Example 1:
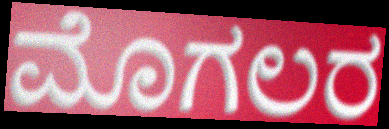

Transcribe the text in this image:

ಮೊಗಲರ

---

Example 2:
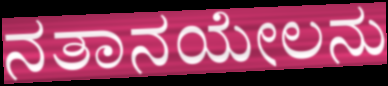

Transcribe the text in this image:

ನತಾನಯೇಲನು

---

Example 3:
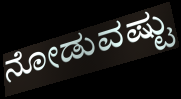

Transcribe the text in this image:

ನೋಡುವಷ್ಟು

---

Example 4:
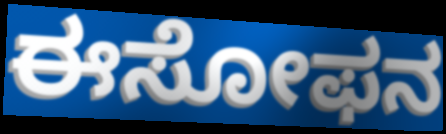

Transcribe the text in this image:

ಈಸೋಫನ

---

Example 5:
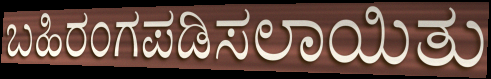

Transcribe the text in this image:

ಬಹಿರಂಗಪಡಿಸಲಾಯಿತು